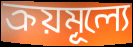
ক্রয়মূল্যে